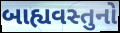
બાહ્યવસ્તુનો